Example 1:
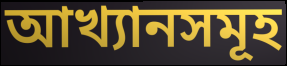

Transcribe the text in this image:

আখ্যানসমূহ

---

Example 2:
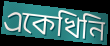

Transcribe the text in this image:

একেখিনি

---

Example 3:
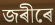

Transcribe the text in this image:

জৰীৰে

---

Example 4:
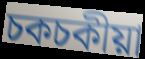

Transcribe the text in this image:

চকচকীয়া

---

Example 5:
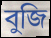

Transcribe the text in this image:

বুজি